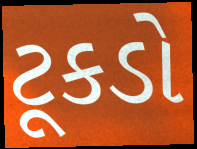
ટૂકડો